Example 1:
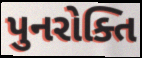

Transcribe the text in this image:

પુનરોક્તિ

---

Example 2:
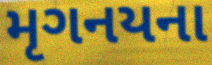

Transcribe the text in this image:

મૃગનયના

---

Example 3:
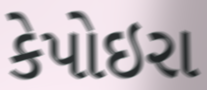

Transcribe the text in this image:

કેપોઇરા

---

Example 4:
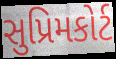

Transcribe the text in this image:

સુપ્રિમકોર્ટ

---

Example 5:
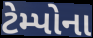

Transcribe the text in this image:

ટેમ્પોના